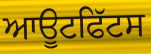
ਆਊਟਫਿੱਟਸ